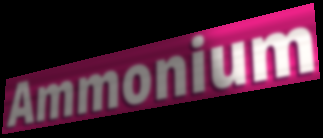
Ammonium